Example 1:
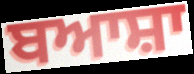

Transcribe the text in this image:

ਬਆਸ਼ਾ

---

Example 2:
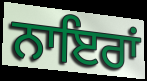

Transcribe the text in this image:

ਨਾਇਰਾਂ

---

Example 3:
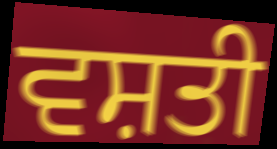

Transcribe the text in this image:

ਵਸ਼ਤੀ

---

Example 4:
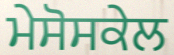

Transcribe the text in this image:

ਮੇਸੋਸਕੇਲ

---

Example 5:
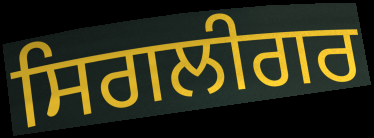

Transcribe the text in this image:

ਸਿਗਲੀਗਰ